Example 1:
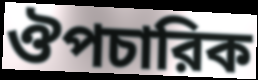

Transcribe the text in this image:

ঔপচারিক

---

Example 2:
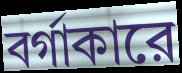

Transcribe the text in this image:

বর্গাকারে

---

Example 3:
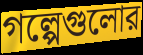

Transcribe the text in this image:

গল্পেগুলোর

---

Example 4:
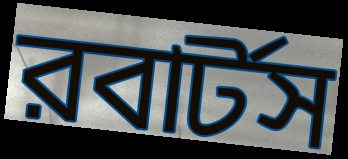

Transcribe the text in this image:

রবার্টস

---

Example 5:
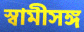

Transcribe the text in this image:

স্বামীসঙ্গ